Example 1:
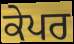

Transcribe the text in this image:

ਕੇਪਰ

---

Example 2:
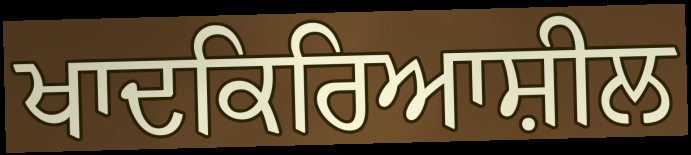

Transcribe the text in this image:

ਖਾਦਕਿਰਿਆਸ਼ੀਲ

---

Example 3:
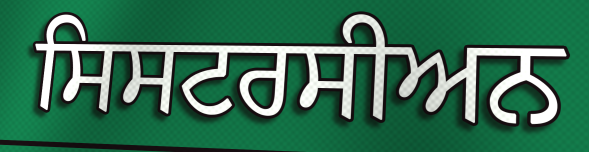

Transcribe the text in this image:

ਸਿਸਟਰਸੀਅਨ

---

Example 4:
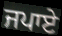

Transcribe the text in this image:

ਜਪਾਏ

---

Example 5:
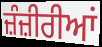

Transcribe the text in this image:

ਜ਼ੰਜ਼ੀਰੀਆਂ